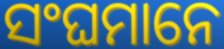
ସଂଘମାନେ